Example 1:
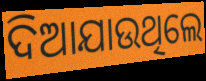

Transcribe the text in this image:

ଦିଆଯାଉଥିଲେ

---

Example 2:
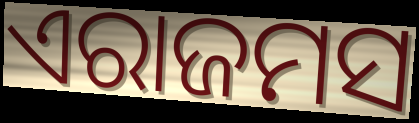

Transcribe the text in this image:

ଏରାଜମସ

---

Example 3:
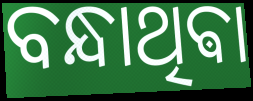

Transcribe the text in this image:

ବନ୍ଧାଥିଵା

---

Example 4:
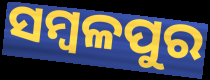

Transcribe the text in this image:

ସମ୍ବଳପୁର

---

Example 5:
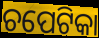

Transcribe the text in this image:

ଚପେଟିକା